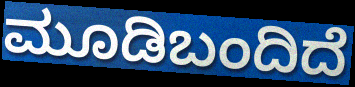
ಮೂಡಿಬಂದಿದೆ